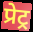
प्रेट्र